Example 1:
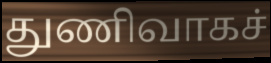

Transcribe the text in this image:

துணிவாகச்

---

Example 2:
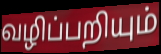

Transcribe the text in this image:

வழிப்பறியும்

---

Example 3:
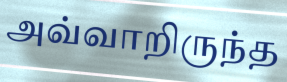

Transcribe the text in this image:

அவ்வாறிருந்த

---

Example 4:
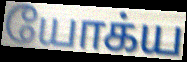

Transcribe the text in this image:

யோக்ய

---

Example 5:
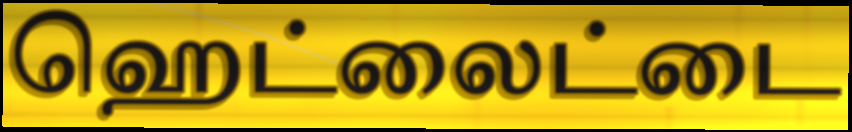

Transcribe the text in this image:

ஹெட்லைட்டை